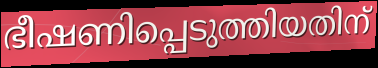
ഭീഷണിപ്പെടുത്തിയതിന്